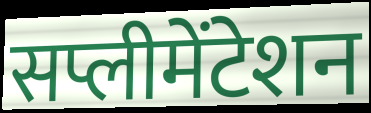
सप्लीमेंटेशन